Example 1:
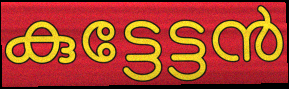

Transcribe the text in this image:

കുട്ടേട്ടൻ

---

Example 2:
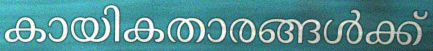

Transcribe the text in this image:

കായികതാരങ്ങൾക്ക്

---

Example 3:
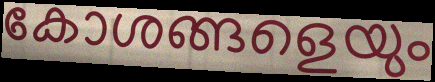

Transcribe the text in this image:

കോശങ്ങളെയും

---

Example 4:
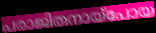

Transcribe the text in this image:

പരാജിതനായ്പോയ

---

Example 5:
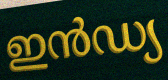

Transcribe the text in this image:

ഇൻഡ്യ